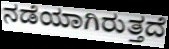
ನಡೆಯಾಗಿರುತ್ತದೆ